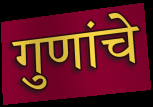
गुणांचे